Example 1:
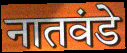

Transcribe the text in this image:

नातवंडे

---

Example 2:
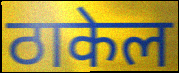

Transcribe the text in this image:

ठाकेल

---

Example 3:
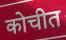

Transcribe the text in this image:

कोचीत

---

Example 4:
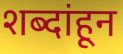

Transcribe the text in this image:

शब्दांहून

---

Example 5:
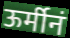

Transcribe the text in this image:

ऊर्मीनं